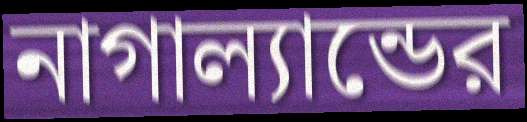
নাগাল্যান্ডের